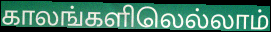
காலங்களிலெல்லாம்